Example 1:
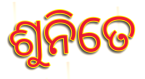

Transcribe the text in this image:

ଶୁନିତେ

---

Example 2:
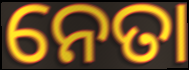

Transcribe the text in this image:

ନେତା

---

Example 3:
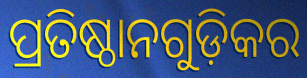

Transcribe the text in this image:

ପ୍ରତିଷ୍ଠାନଗୁଡ଼ିକର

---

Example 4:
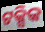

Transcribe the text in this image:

ଟକ୍ସିକ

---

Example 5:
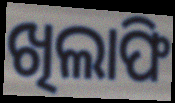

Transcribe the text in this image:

ଖିଲାଫି